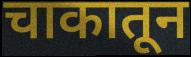
चाकातून